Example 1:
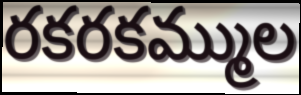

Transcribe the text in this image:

రకరకమ్ముల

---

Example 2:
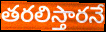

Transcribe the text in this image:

తరలిస్తారనే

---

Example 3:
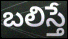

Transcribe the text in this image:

బలిస్తే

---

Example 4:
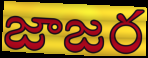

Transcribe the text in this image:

జాజర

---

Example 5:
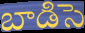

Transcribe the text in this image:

బాడిసె